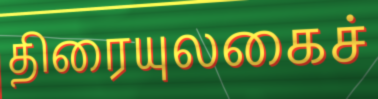
திரையுலகைச்